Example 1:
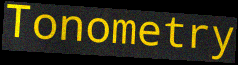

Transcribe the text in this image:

Tonometry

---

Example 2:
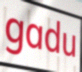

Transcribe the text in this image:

gadu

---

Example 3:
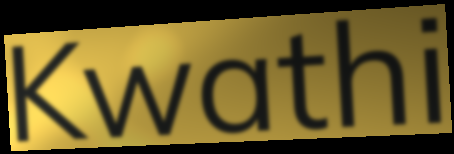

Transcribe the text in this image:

Kwathi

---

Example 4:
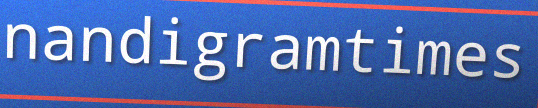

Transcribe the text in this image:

nandigramtimes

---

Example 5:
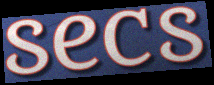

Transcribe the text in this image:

secs